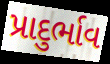
પ્રાદુર્ભાવ